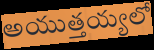
అయుత్తయ్యలో